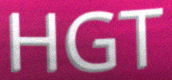
HGT